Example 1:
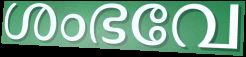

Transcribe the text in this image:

ശംഭവേ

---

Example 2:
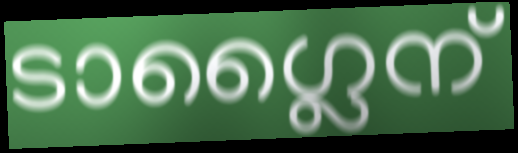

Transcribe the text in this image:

ടാഗ്ലൈന്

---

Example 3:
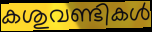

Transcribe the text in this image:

കശുവണ്ടികൾ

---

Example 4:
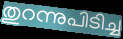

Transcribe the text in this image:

തുറന്നുപിടിച്ച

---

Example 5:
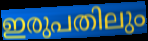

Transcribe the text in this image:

ഇരുപതിലും